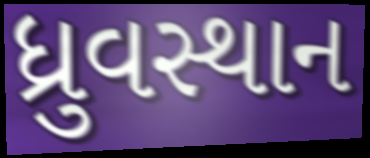
ધ્રુવસ્થાન